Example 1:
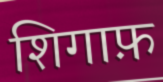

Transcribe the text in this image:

शिगाफ़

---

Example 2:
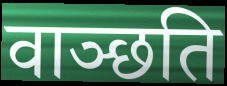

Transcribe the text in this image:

वाञ्छति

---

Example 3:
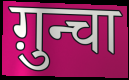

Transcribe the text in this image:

ग़ुन्चा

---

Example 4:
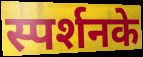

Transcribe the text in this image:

स्पर्शनके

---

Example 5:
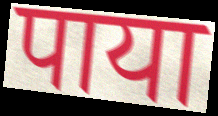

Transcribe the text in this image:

पाया